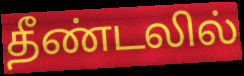
தீண்டலில்